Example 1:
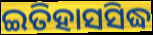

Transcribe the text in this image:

ଇତିହାସସିଦ୍ଧ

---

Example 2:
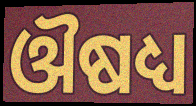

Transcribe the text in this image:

ଔଷଧ୍ୟ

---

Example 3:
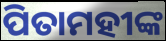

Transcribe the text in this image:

ପିତାମହୀଙ୍କ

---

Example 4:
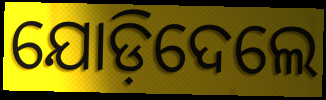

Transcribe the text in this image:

ଯୋଡ଼ିଦେଲେ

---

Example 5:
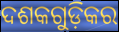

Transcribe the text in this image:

ଦଶକଗୁଡ଼ିକର